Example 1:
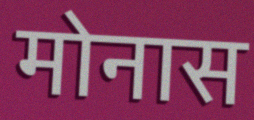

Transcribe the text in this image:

मोनास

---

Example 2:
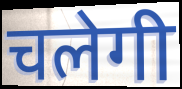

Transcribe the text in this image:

चलेगी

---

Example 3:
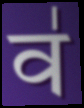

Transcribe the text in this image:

व॑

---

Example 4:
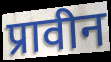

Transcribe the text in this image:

प्रावीन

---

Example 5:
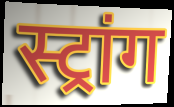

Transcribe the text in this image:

स्ट्रांग